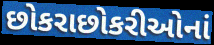
છોકરાછોકરીઓનાં